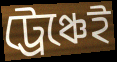
ট্রেঞ্চেই